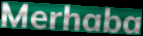
Merhaba